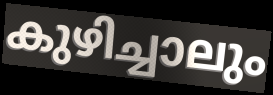
കുഴിച്ചാലും